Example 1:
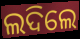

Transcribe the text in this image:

ଲଦିଲେ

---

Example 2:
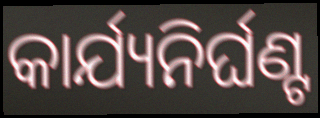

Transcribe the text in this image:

କାର୍ଯ୍ୟନିର୍ଘଣ୍ଟ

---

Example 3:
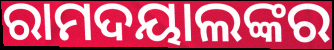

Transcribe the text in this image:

ରାମଦୟାଲଙ୍କର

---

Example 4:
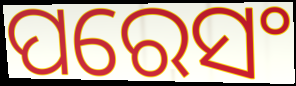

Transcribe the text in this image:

ପରେସଂ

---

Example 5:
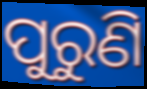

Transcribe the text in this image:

ପୁରୁଣି